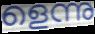
ളെന്നു